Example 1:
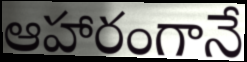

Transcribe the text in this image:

ఆహారంగానే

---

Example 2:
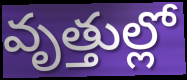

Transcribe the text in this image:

వృత్తుల్లో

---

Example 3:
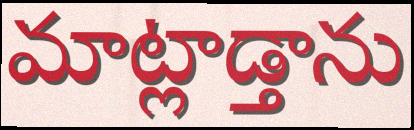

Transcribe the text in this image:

మాట్లాడ్తాను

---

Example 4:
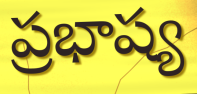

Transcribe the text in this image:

ప్రభాష్య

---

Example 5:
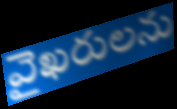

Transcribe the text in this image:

వైఖరులను